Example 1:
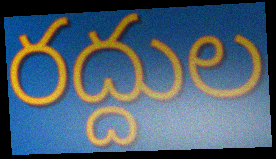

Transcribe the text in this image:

రద్దుల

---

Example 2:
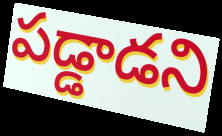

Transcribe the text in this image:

పడ్డాడని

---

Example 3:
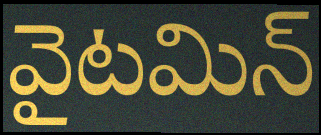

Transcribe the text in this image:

వైటమిన్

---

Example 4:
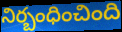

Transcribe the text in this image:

నిర్బంధించింది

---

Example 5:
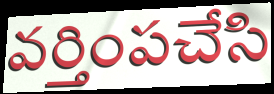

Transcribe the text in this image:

వర్తింపచేసి